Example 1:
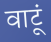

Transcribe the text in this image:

वाटूं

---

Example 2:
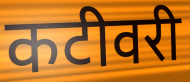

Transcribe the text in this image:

कटीवरी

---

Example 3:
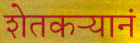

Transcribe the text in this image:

शेतकऱ्यानं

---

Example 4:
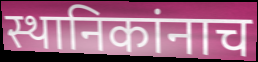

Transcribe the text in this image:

स्थानिकांनाच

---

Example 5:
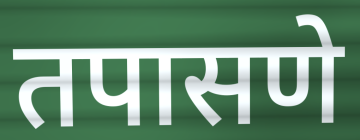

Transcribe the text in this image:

तपासणे